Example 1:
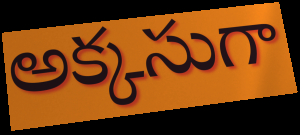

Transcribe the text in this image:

అక్కసుగా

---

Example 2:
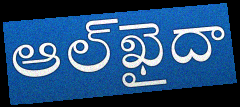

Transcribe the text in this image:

ఆల్‌ఖైదా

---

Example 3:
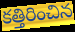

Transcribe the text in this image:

కత్తిరించిన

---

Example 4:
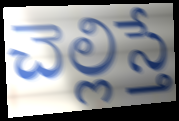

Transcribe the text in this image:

చెల్లిస్తే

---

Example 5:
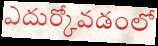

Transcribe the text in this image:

ఎదుర్కోవడంలో